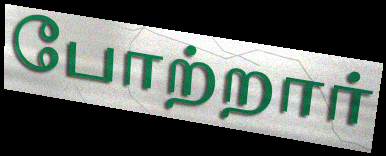
போற்றார்